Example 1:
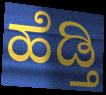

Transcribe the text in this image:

ಹೆಡ್ತಿ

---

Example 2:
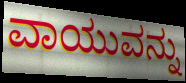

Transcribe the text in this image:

ವಾಯುವನ್ನು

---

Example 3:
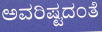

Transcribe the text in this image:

ಅವರಿಷ್ಟದಂತೆ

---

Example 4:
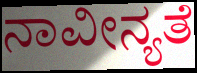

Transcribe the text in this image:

ನಾವೀನ್ಯತೆ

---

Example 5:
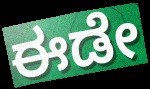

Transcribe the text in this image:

ಈಡೇ